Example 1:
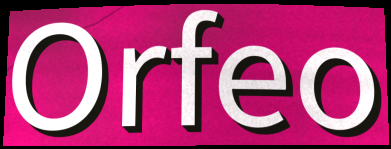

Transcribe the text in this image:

Orfeo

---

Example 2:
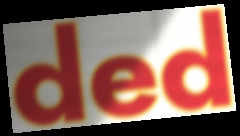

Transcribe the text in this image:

ded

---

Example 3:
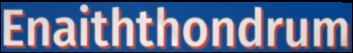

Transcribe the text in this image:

Enaiththondrum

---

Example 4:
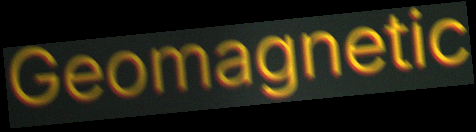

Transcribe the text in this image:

Geomagnetic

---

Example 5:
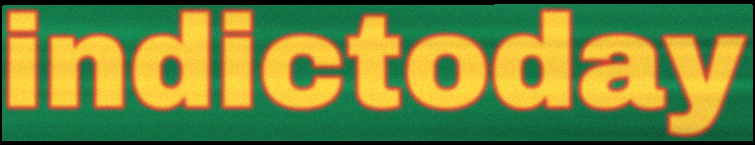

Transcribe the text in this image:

indictoday